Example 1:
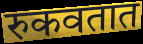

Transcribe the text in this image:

रुकवतात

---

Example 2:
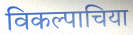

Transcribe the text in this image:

विकल्पाचिया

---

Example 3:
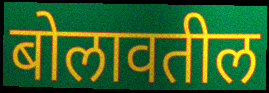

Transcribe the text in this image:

बोलावतील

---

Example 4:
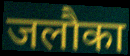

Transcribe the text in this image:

जलौका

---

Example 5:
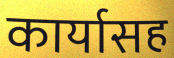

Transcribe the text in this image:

कार्यासह